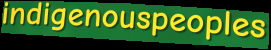
indigenouspeoples